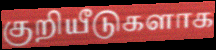
குறியீடுகளாக